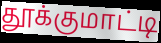
தூக்குமாட்டி